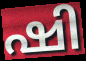
ഷി